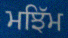
ਮਝਿੱਮ